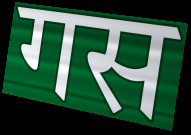
गस